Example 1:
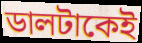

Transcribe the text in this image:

ডালটাকেই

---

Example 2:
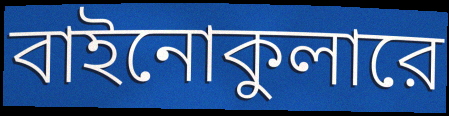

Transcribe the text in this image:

বাইনোকুলারে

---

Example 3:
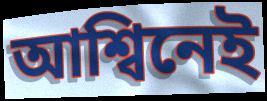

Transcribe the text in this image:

আশ্বিনেই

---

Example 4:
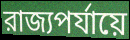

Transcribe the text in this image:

রাজ্যপর্যায়ে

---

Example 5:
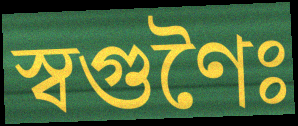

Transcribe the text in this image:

স্বগুণৈঃ